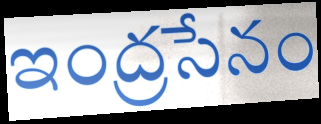
ఇంద్రసేనం